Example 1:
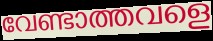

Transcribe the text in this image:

വേണ്ടാത്തവളെ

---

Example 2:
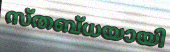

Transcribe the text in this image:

സ്തബ്ധയായി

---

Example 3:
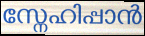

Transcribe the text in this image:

സ്നേഹിപ്പാൻ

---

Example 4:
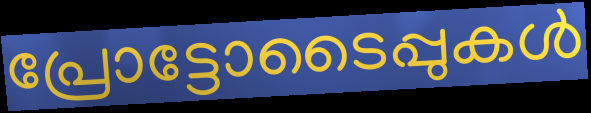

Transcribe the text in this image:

പ്രോട്ടോടൈപ്പുകൾ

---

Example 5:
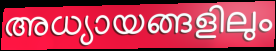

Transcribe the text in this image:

അധ്യായങ്ങളിലും